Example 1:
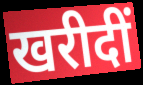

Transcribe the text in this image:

खरीदीं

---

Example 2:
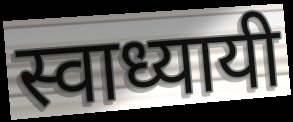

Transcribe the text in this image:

स्वाध्यायी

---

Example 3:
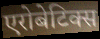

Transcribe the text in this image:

एरोबेटिक्स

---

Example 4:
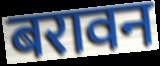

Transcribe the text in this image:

बरावन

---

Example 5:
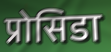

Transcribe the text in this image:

प्रोसिडा